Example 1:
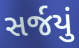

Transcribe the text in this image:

સર્જયું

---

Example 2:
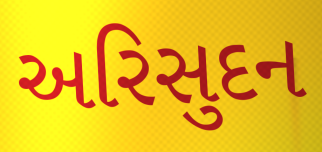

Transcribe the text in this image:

અરિસુદન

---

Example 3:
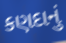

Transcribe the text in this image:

કણદાનું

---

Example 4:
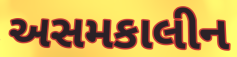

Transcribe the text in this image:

અસમકાલીન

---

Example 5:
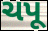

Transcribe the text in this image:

ચપૂ